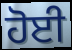
ਹੋਈ